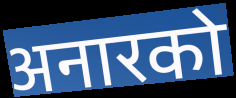
अनारको